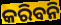
କରିବନି